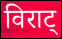
विराट्